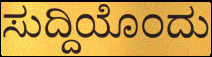
ಸುದ್ದಿಯೊಂದು